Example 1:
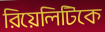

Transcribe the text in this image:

রিয়েলিটিকে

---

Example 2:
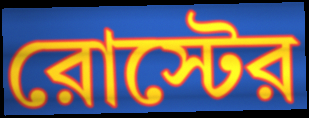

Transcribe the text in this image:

রোস্টের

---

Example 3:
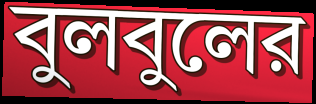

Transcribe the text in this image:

বুলবুলের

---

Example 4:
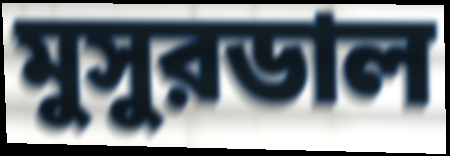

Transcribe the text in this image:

মুসুরডাল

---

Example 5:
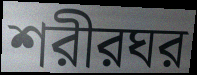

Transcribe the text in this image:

শরীরঘর